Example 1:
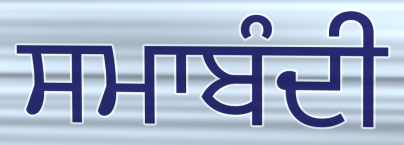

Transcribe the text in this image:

ਸਮਾਬੰਦੀ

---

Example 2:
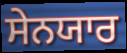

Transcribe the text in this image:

ਸੇਨਯਾਰ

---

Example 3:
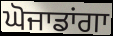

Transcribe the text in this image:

ਘੋਜਾਡਾਂਗਾ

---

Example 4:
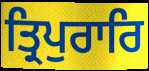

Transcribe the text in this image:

ਤ੍ਰਿਪੁਰਾਰਿ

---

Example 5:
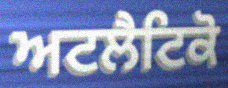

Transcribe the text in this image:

ਅਟਲੈਟਿਕੋ